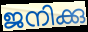
ജനിക്കു